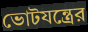
ভোটযন্ত্রের